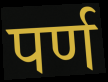
पर्ण